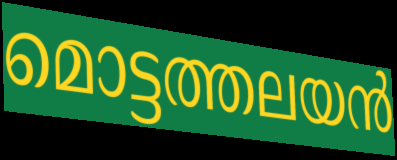
മൊട്ടത്തലയൻ